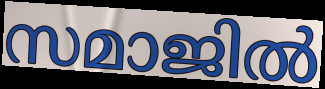
സമാജിൽ